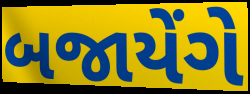
બજાયેંગે